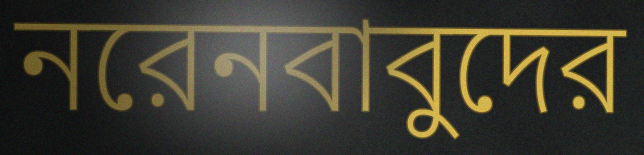
নরেনবাবুদের